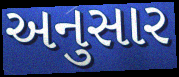
અનુસાર